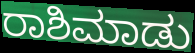
ರಾಶಿಮಾಡು